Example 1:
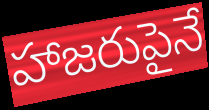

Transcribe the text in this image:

హాజరుపైనే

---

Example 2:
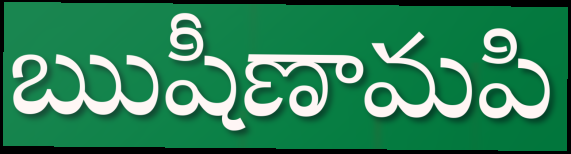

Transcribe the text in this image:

ఋషీణామపి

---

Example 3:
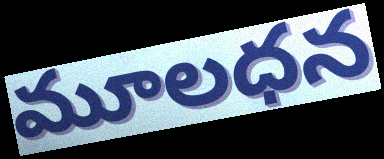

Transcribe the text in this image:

మూలధన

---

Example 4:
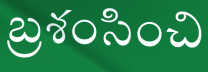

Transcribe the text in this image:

బ్రశంసించి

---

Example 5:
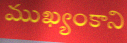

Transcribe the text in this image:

ముఖ్యంకాని